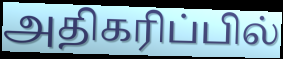
அதிகரிப்பில்